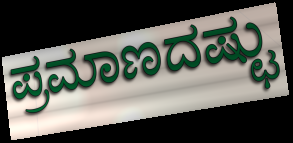
ಪ್ರಮಾಣದಷ್ಟು